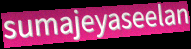
sumajeyaseelan